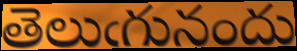
తెలుఁగునందు